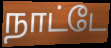
நாட்டே